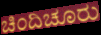
ಚಿಂದಿಚೂರು